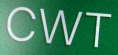
CWT